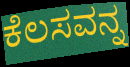
ಕೆಲಸವನ್ನ